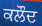
ਕਲੌਦ